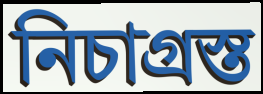
নিচাগ্ৰস্ত